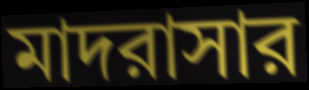
মাদরাসার